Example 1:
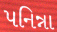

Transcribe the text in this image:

પનિન્ના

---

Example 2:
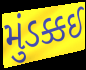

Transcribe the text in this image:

મુંડક્કઈ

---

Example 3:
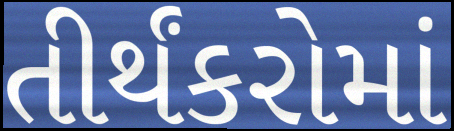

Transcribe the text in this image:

તીર્થંકરોમાં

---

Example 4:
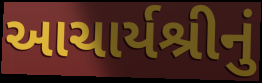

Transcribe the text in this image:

આચાર્યશ્રીનું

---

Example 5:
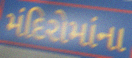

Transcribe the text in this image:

મંદિરોમાંના